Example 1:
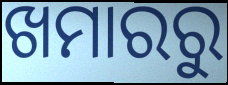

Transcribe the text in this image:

ଖମାରରୁ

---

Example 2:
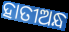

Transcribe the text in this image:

ହାତୀଅନ୍ଧ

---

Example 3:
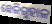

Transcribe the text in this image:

ଛେଳିଗୁହାଳ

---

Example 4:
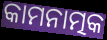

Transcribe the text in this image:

କାମନାତ୍ମକ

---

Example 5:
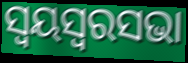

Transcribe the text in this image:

ସ୍ୱୟସ୍ୱରସଭା